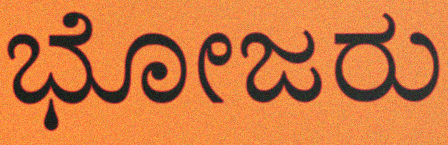
ಭೋಜರು